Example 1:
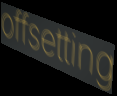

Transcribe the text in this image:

offsetting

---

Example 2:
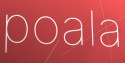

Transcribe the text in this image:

poala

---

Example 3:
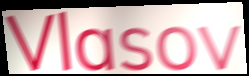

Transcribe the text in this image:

Vlasov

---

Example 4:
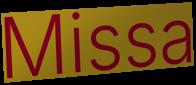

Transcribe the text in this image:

Missa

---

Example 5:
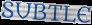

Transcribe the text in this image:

SUBTLE